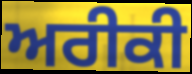
ਅਰੀਕੀ